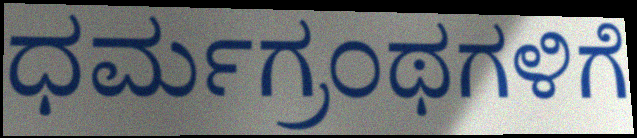
ಧರ್ಮಗ್ರಂಥಗಳಿಗೆ